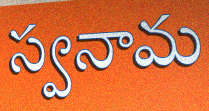
స్వనామ